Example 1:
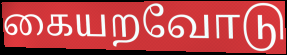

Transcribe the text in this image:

கையறவோடு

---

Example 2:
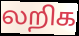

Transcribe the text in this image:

லறிக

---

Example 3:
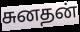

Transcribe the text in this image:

சுனதன்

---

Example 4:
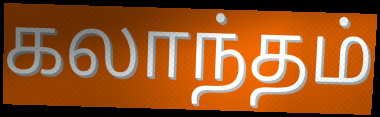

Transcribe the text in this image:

கலாந்தம்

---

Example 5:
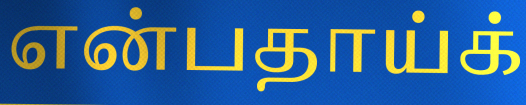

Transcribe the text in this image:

என்பதாய்க்